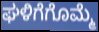
ಘಳಿಗೆಗೊಮ್ಮೆ